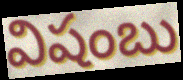
విషంబు